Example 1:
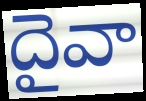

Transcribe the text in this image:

దైవా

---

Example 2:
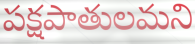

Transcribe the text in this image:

పక్షపాతులమని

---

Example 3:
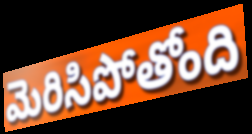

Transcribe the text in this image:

మెరిసిపోతోంది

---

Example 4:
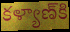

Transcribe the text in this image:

కళ్యాణ్‍కి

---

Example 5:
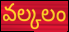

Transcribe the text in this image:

వల్కలం